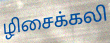
ழிசைக்கலி